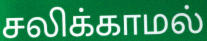
சலிக்காமல்